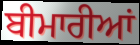
ਬੀਮਾਰੀਆਂ